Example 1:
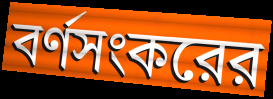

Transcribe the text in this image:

বর্ণসংকরের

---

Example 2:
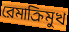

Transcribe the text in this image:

রেমাক্রিমুখ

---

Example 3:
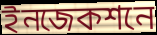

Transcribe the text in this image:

ইনজেকশনে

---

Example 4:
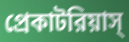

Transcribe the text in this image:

প্রেকাটরিয়াস্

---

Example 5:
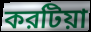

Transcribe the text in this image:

করটিয়া